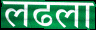
लढला